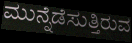
ಮುನ್ನೆಡೆಸುತ್ತಿರುವ